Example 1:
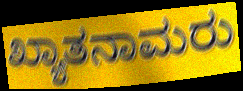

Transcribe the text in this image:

ಖ್ಯಾತನಾಮರು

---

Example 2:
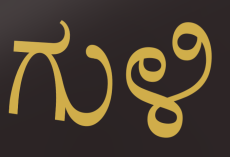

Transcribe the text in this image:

ಗುಳಿ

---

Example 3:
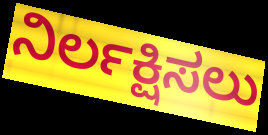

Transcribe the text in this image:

ನಿರ್ಲಕ್ಷಿಸಲು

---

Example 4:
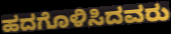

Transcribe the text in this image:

ಹದಗೊಳಿಸಿದವರು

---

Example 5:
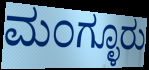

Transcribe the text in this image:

ಮಂಗ್ಳೂರು